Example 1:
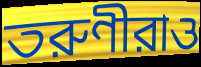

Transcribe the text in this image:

তরুণীরাও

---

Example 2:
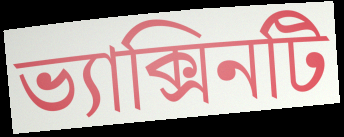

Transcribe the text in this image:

ভ্যাক্সিনটি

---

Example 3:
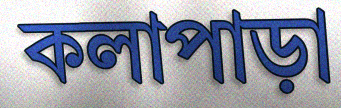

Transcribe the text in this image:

কলাপাড়া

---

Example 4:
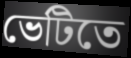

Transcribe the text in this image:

ভেটিতে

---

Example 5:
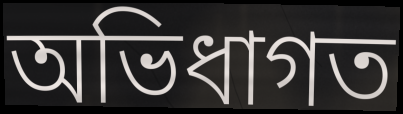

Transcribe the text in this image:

অভিধাগত